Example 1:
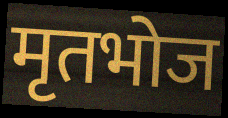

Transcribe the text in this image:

मृतभोज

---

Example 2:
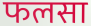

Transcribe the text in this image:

फलसा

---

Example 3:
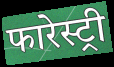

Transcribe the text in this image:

फारेस्ट्री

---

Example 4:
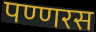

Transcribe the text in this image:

पण्णरस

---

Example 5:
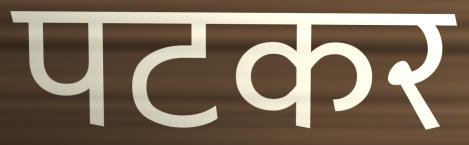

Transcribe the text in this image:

पटकर